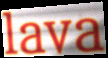
lava